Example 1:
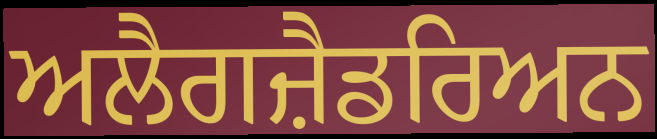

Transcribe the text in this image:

ਅਲੈਗਜ਼ੈਡਰਿਅਨ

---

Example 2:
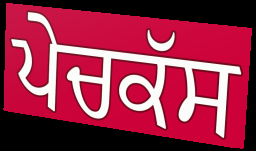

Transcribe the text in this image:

ਪੇਚਕੱਸ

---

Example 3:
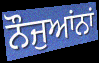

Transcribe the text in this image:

ਨੌਜੁਆਂਨਾਂ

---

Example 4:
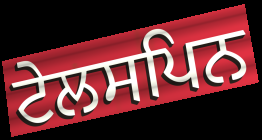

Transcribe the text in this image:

ਟੇਲਸਪਿਨ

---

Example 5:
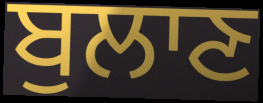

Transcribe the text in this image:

ਬੁਲਾਣ